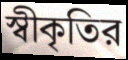
স্বীকৃতির